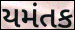
યમંતક